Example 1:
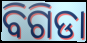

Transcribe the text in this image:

ବିଗିଡା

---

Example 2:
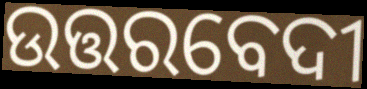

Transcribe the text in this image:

ଉତ୍ତରବେଦୀ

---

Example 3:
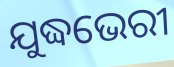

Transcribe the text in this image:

ଯୁଦ୍ଧଭେରୀ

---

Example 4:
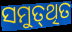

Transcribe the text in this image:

ସମୁତ୍‌ଥିତ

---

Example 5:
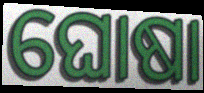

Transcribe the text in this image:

ଘୋଷା